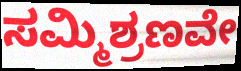
ಸಮ್ಮಿಶ್ರಣವೇ